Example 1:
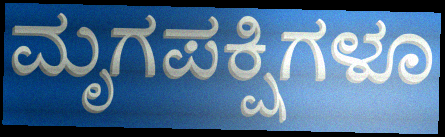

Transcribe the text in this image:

ಮೃಗಪಕ್ಷಿಗಳೂ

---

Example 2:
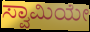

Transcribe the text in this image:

ಸ್ವಾಮಿಯೇ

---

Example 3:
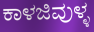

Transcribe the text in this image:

ಕಾಳಜಿವುಳ್ಳ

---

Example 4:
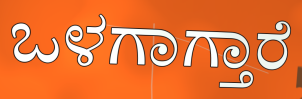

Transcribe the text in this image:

ಒಳಗಾಗ್ತಾರೆ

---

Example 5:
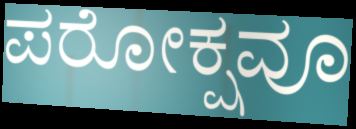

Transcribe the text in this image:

ಪರೋಕ್ಷವೂ